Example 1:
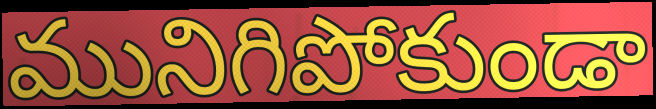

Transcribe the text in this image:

మునిగిపోకుండా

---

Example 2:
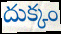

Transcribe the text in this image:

దుక్కం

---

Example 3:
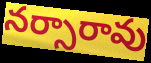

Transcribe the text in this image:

నర్సారావు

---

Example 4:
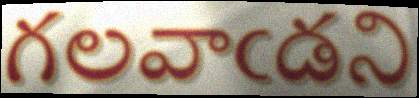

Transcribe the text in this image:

గలవాఁడని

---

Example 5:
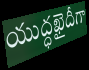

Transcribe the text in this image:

యుద్ధఖైదీగా